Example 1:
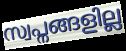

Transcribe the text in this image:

സ്വപ്നങ്ങളില്ല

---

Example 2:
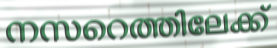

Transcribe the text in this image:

നസറെത്തിലേക്ക്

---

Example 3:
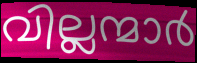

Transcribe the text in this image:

വില്ലന്മാർ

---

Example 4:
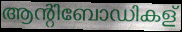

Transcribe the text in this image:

ആന്റിബോഡികള്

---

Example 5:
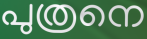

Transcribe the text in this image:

പുത്രനെ